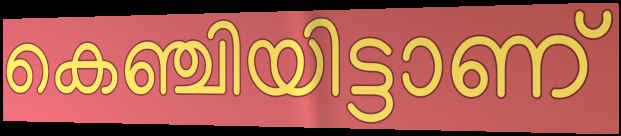
കെഞ്ചിയിട്ടാണ്